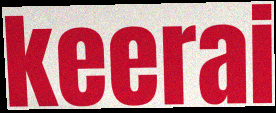
keerai